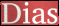
Dias